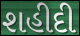
શહીદી